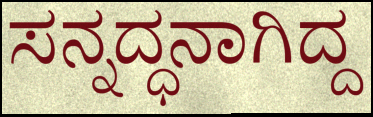
ಸನ್ನದ್ಧನಾಗಿದ್ದ